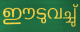
ഈടുവച്ചു്